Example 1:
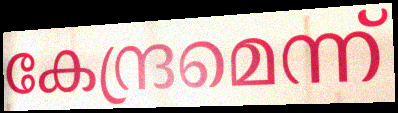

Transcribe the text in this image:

കേന്ദ്രമെന്ന്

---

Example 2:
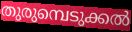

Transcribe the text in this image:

തുരുമ്പെടുക്കൽ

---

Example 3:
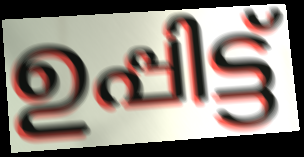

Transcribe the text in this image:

ഉപ്പിട്ട്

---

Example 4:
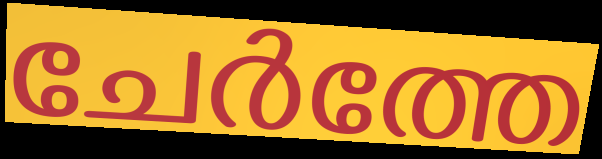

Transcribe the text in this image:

ചേർത്തേ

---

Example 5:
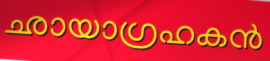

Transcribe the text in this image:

ഛായാഗ്രഹകൻ